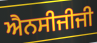
ਐਨਸੀਜੀਜੀ